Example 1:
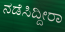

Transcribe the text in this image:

ನಡೆಸಿದ್ದೀರಾ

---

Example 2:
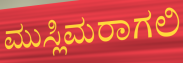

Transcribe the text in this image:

ಮುಸ್ಲಿಮರಾಗಲಿ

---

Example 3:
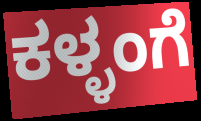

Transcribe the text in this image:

ಕಳ್ಳಂಗೆ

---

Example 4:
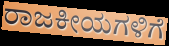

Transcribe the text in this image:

ರಾಜಕೀಯಗಳಿಗೆ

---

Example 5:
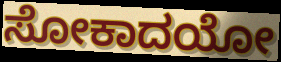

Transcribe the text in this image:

ಸೋಕಾದಯೋ